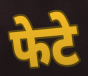
फेटे